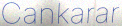
Cankarar